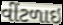
વીંટળાઇ